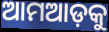
ଆମଆଡ଼କୁ